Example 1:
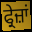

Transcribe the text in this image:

ਫ੍ਰੇਜ਼ਾਂ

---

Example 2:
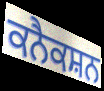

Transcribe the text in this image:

ਕਨੈਕਸ਼ਨ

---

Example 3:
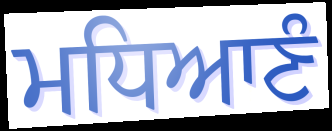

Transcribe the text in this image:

ਮਧਿਆਣੰ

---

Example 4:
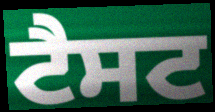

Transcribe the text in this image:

ਟੈਸਟ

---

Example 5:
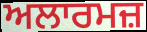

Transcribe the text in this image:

ਅਲਾਰਮਜ਼